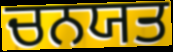
ਚਨਯਤ